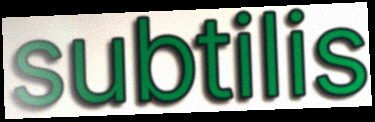
subtilis